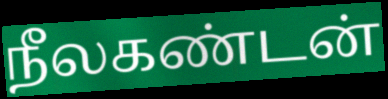
நீலகண்டன்